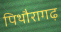
पिथौरागढ़